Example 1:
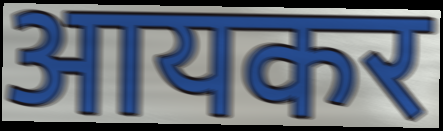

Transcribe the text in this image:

आयकर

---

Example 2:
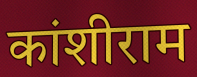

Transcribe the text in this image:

कांशीराम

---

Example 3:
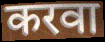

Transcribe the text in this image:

करवा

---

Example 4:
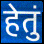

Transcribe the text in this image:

हेतुं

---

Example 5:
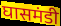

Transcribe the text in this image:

घासमंडी